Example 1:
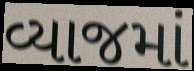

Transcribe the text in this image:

વ્યાજમાં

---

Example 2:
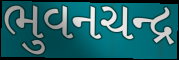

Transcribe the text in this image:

ભુવનચન્દ્ર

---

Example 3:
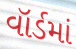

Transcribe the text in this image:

વૉર્ડમાં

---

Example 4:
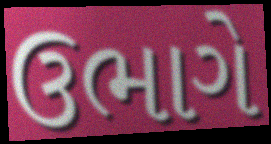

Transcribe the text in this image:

ઉભાગે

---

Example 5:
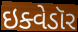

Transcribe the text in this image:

ઇક્વેડૉર